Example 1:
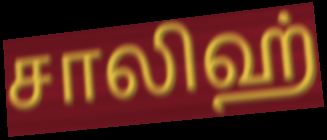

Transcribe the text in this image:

சாலிஹ்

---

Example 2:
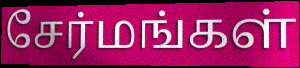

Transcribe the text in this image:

சேர்மங்கள்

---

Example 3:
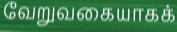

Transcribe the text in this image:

வேறுவகையாகக்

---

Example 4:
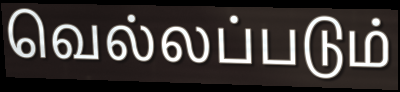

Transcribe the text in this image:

வெல்லப்படும்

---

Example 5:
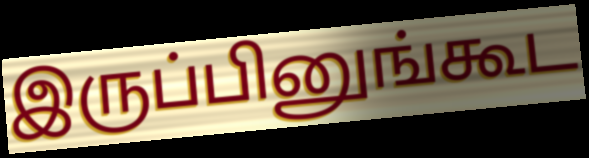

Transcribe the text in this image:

இருப்பினுங்கூட